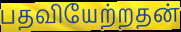
பதவியேற்றதன்